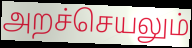
அறச்செயலும்